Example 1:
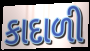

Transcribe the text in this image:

કાદાળી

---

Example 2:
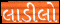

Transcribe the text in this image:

લાડીલો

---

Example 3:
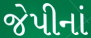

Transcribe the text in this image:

જેપીનાં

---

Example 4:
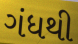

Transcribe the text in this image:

ગંધથી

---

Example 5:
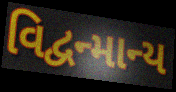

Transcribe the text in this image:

વિદ્વન્માન્ય